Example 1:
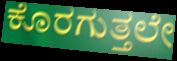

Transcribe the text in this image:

ಕೊರಗುತ್ತಲೇ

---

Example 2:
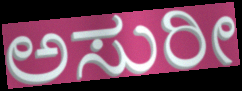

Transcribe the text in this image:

ಅಸುರೀ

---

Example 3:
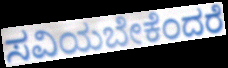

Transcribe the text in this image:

ಸವಿಯಬೇಕೆಂದರೆ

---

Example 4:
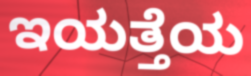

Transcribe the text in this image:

ಇಯತ್ತೆಯ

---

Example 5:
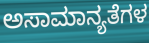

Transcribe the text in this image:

ಅಸಾಮಾನ್ಯತೆಗಳ